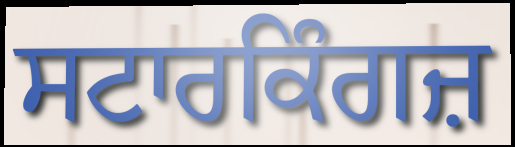
ਸਟਾਰਕਿੰਗਜ਼